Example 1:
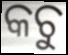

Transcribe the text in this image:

କଚୁ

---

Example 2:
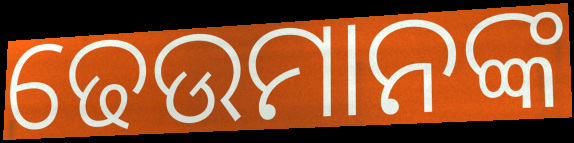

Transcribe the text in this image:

ଢେଉମାନଙ୍କ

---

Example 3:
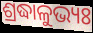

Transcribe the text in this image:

ଶ୍ରଦ୍ଧାଳୁଭ୍ୟଃ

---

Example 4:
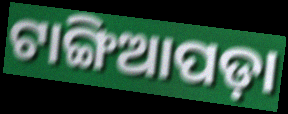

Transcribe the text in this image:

ଟାଙ୍ଗିଆପଡ଼ା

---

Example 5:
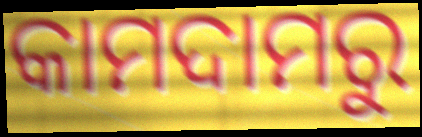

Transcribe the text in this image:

କାମଦାମରୁ